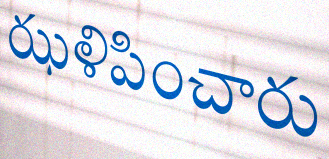
ఝళిపించారు